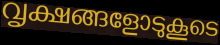
വൃക്ഷങ്ങളോടുകൂടെ